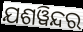
ଯଶୱିନ୍ଦର